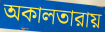
অকালতারায়